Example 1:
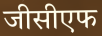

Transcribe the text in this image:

जीसीएफ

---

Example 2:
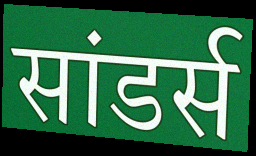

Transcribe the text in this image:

सांडर्स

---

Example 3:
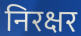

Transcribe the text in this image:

निरक्षर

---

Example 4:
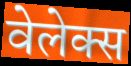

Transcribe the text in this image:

वेलेक्स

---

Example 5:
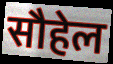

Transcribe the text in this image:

सौहेल